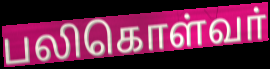
பலிகொள்வர்